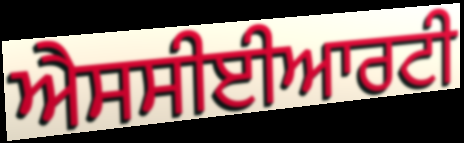
ਐਸਸੀਈਆਰਟੀ